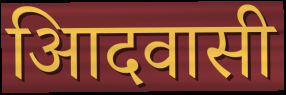
आिदवासी